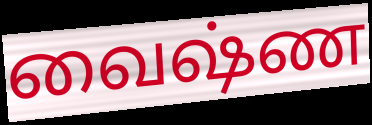
வைஷ்ண